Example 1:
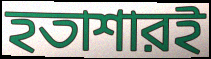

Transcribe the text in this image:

হতাশারই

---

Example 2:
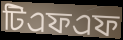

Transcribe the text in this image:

টিএফএফ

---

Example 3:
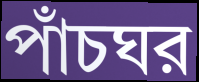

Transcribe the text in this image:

পাঁচঘর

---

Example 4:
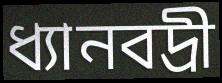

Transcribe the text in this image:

ধ্যানবদ্রী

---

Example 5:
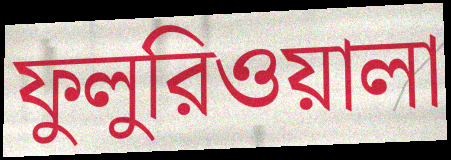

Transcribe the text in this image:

ফুলুরিওয়ালা